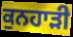
ਕੁਨਹਾੜੀ